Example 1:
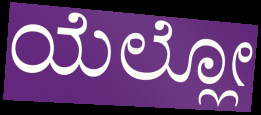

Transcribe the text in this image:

ಯೆಲ್ಲೋ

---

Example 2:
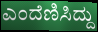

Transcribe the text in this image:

ಎಂದೆಣಿಸಿದ್ದು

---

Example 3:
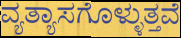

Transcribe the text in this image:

ವ್ಯತ್ಯಾಸಗೊಳ್ಳುತ್ತವೆ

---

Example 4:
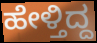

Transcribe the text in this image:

ಹೇಳ್ತಿದ್ದ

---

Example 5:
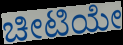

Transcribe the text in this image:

ಚೀಟಿಯೇ